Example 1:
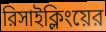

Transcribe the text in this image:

রিসাইক্লিংয়ের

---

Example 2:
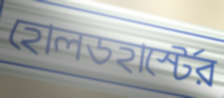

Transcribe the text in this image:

হোলডহার্স্টের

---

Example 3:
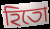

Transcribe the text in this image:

হিতো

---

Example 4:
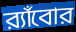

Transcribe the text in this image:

র‍্যাঁবোর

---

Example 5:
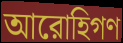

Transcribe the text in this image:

আরোহিগণ